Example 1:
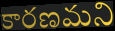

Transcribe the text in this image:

కారణమని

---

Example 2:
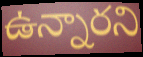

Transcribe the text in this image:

ఉన్నారని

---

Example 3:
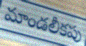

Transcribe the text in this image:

మాండలీకపు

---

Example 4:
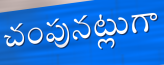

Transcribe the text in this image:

చంపునట్లుగా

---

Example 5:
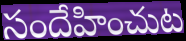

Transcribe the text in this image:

సందేహించుట